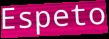
Espeto